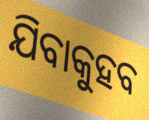
ଯିବାକୁହବ